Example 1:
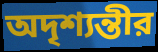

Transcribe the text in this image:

অদৃশ্যন্তীর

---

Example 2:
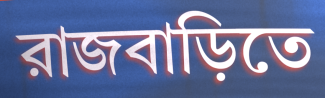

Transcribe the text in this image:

রাজবাড়িতে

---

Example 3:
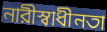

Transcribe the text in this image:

নারীস্বাধীনতা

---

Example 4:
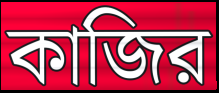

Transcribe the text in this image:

কাজির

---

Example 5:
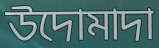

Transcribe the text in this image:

উদোমাদা